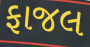
ફાજલ